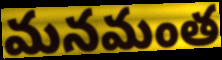
మనమంత